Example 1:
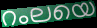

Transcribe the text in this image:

റംലയെ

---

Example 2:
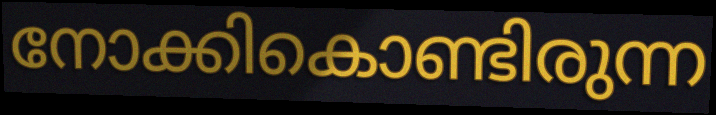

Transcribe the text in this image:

നോക്കികൊണ്ടിരുന്ന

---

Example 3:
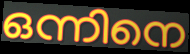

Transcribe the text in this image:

ഒന്നിനെ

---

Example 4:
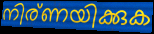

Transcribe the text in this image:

നിര്ണയിക്കുക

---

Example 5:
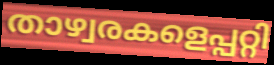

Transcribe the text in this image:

താഴ്വരകളെപ്പറ്റി